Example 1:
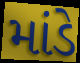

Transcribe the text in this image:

માંડે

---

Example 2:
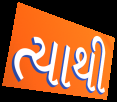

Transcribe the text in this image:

ત્યાથી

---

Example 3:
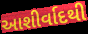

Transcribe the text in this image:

આશીર્વાદથી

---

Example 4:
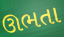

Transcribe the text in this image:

ઊભતા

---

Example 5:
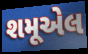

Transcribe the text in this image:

શમૂએલ